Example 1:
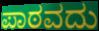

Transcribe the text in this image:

ಪಾಠವದು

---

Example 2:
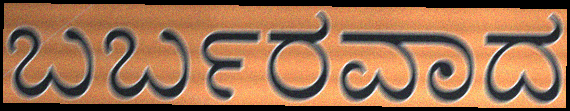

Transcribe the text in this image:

ಬರ್ಬರವಾದ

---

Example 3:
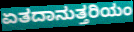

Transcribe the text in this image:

ಏತದಾನುತ್ತರಿಯಂ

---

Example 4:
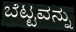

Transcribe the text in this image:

ಬೆಟ್ಟವನ್ನು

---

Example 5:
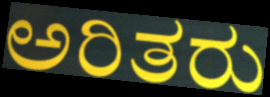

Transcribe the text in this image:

ಅರಿತರು